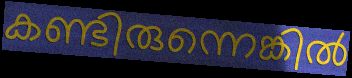
കണ്ടിരുന്നെങ്കിൽ